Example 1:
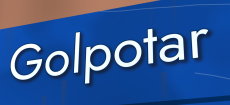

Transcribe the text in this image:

Golpotar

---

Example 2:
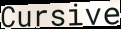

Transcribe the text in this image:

Cursive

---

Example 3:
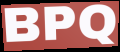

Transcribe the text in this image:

BPQ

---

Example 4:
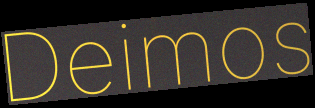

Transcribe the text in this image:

Deimos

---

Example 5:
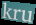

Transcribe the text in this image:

kru